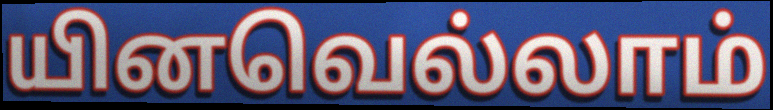
யினவெல்லாம்